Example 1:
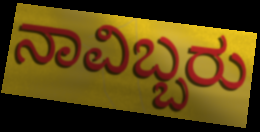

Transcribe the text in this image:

ನಾವಿಬ್ಬರು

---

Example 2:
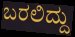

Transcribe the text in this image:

ಬರಲಿದ್ದು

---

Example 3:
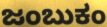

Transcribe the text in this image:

ಜಂಬುಕಂ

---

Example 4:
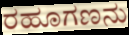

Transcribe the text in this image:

ರಹೂಗಣನು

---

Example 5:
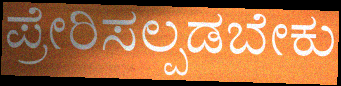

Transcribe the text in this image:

ಪ್ರೇರಿಸಲ್ಪಡಬೇಕು